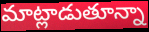
మాట్లాడుతూన్నా